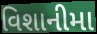
વિશાનીમા